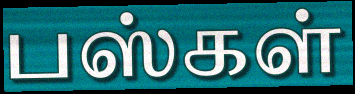
பஸ்கள்